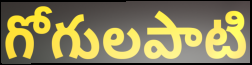
గోగులపాటి